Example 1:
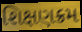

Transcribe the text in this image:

શિક્ષણક્રમ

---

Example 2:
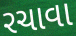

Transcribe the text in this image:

રચાવા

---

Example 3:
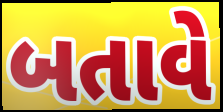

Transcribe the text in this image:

બતાવે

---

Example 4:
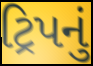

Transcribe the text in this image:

ટ્રિપનું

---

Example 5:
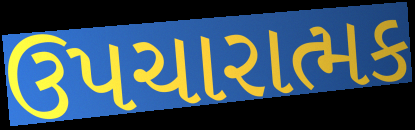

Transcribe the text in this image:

ઉપચારાત્મક